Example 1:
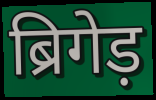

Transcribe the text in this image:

ब्रिगेड़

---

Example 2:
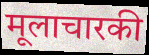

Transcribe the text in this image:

मूलाचारकी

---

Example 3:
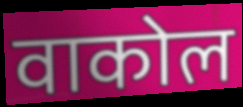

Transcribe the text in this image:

वाकोल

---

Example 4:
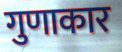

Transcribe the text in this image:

गुणाकार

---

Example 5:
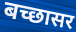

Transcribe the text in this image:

बच्छासर